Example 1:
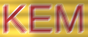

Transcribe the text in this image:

KEM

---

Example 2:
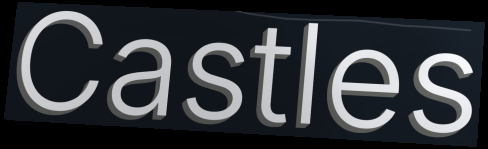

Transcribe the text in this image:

Castles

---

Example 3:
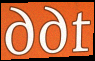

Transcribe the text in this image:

ddt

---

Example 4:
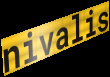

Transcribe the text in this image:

nivalis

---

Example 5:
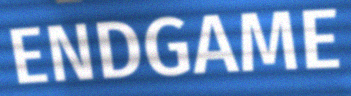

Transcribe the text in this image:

ENDGAME